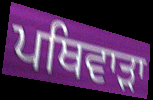
ਪਥਿਵਾੜਾ